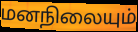
மனநிலையும்